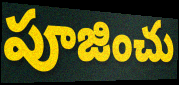
పూజించు